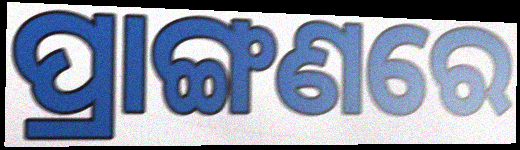
ପ୍ରାଙ୍ଗଣରେ